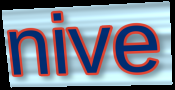
nive